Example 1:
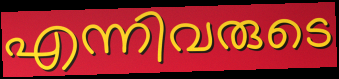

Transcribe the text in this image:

എന്നിവരുടെ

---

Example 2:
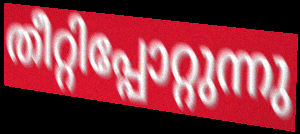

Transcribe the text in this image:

തീറ്റിപ്പോറ്റുന്നു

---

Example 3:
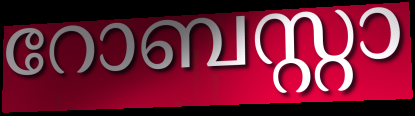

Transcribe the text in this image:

റോബസ്റ്റാ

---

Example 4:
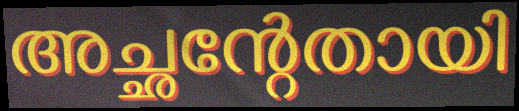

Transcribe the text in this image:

അച്ഛന്റേതായി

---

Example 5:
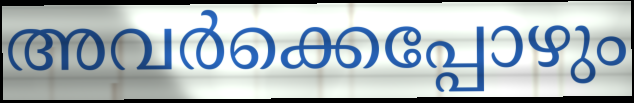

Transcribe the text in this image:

അവർക്കെപ്പോഴും